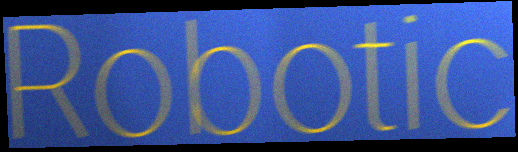
Robotic